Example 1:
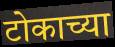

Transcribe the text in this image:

टोकाच्या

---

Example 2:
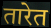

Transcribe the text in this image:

तारेत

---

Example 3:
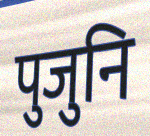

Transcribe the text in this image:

पुजुनि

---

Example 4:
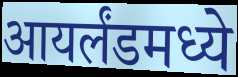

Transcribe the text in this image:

आयर्लंडमध्ये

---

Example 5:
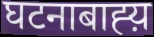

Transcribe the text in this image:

घटनाबाह्य़